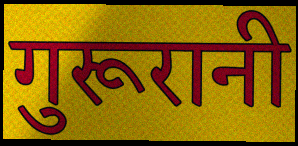
गुरूरानी